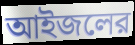
আইজলের